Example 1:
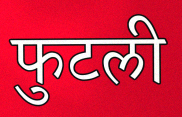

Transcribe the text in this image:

फुटली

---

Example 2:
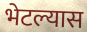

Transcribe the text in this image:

भेटल्यास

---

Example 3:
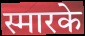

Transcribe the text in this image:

स्मारके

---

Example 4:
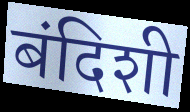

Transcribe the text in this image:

बंदिशी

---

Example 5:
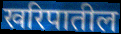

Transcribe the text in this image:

खरिपातील